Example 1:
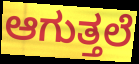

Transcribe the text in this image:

ಆಗುತ್ತಲೆ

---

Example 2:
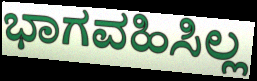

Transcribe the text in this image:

ಭಾಗವಹಿಸಿಲ್ಲ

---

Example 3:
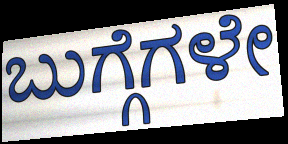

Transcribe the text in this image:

ಬುಗ್ಗೆಗಳೇ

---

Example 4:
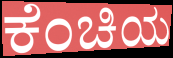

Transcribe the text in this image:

ಕೆಂಚಿಯ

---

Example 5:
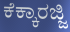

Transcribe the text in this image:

ಕೆಕ್ಕಾರಜ್ಜಿ